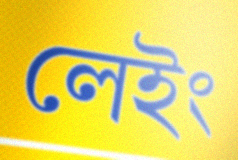
লেইং